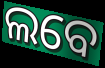
ଲବେ